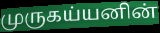
முருகய்யனின்